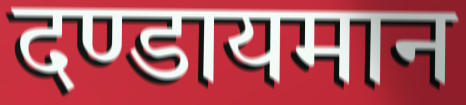
दण्डायमान